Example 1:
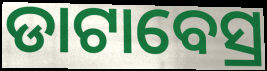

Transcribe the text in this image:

ଡାଟାବେସ୍ର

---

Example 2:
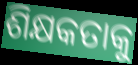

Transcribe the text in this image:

ଶିକ୍ଷକତାକୁ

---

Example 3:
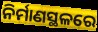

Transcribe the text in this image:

ନିର୍ମାଣସ୍ଥଳରେ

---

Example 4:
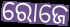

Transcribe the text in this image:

ରୋଜେ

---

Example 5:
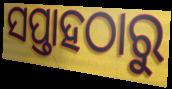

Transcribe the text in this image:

ସପ୍ତାହଠାରୁ